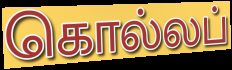
கொல்லப்